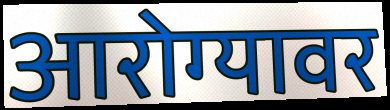
आरोग्यावर